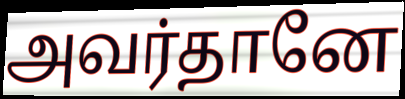
அவர்தானே